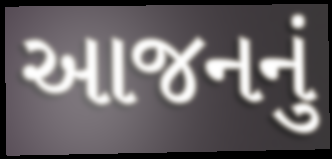
આજનનું